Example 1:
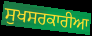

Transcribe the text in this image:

ਸੁਖਸਰਕਾਰੀਆ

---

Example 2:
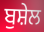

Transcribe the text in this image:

ਬੁਸ਼ੇਲ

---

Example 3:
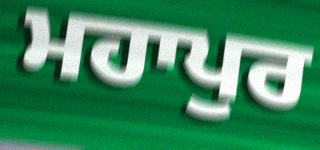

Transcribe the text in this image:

ਮਹਾਪੁਰ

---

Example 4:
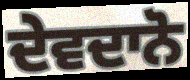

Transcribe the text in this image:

ਦੇਵਦਾਨੋ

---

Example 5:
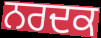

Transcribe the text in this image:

ਨਰਦਕ